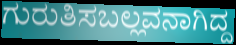
ಗುರುತಿಸಬಲ್ಲವನಾಗಿದ್ದ